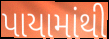
પાયામાંથી